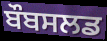
ਬੌਬਸਲਡ